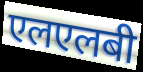
एलएलबी